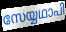
സേയ്യഥാപി